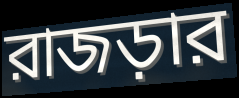
রাজড়ার